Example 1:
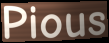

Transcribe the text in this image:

Pious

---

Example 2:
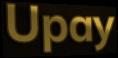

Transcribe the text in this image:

Upay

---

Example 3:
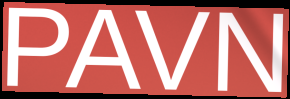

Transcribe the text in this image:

PAVN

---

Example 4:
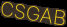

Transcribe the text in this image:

CSGAB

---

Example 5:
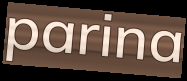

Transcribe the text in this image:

parina